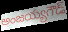
అంజయ్యగౌడ్